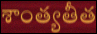
శాంత్యతీత